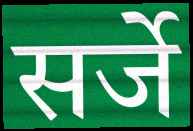
सर्जे